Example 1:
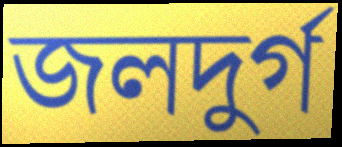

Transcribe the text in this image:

জলদুর্গ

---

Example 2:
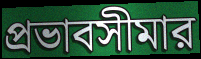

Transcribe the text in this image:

প্রভাবসীমার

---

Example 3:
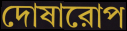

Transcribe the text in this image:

দোষারোপ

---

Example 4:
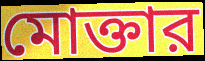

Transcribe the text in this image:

মোক্তার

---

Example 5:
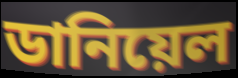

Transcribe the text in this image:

ডানিয়েল